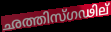
ഛത്തിസ്ഗഢില്